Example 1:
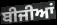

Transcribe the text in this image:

ਬੀਜੀਆਂ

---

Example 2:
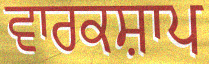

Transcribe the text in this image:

ਵਾਰਕਸ਼ਾਪ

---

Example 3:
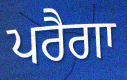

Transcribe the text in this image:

ਪਰੈਗਾ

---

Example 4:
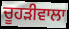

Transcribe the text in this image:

ਚੂਹੜੀਵਾਲਾ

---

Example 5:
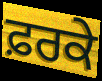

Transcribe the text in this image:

ਫ਼ਰਕੇ